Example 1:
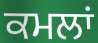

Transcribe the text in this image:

ਕਮਲਾਂ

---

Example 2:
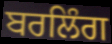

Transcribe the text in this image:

ਬਰਲਿੰਗ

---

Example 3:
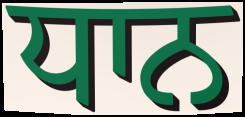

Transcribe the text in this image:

ਧਾਨ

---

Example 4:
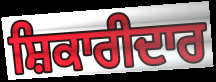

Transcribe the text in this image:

ਸ਼ਿਕਾਰੀਦਾਰ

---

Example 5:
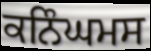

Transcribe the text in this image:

ਕਨਿੰਘਮਸ